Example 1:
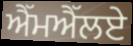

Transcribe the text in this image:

ਐੱਮਐੱਲਏ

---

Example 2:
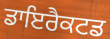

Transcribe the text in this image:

ਡਾਇਰੈਕਟਡ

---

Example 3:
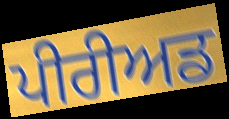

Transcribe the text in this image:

ਪੀਰੀਅਡ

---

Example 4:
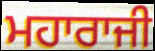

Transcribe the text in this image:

ਮਹਾਰਾਜੀ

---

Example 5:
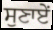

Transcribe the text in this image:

ਸੁਣਾਏਂ